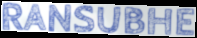
RANSUBHE